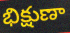
భిక్షుణా